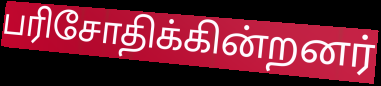
பரிசோதிக்கின்றனர்